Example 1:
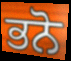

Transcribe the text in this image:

ਭਨੋ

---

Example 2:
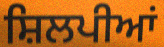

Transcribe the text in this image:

ਸ਼ਿਲਪੀਆਂ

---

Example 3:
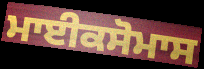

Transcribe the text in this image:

ਮਾਈਕਸੋਮਾਸ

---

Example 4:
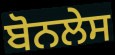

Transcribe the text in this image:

ਬੋਨਲੇਸ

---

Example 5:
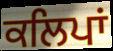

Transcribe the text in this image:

ਕਲਿਪਾਂ